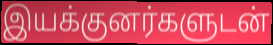
இயக்குனர்களுடன்